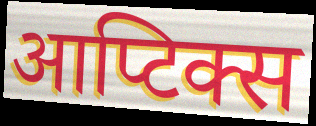
आप्टिक्स